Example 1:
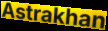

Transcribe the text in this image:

Astrakhan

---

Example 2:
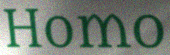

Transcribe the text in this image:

Homo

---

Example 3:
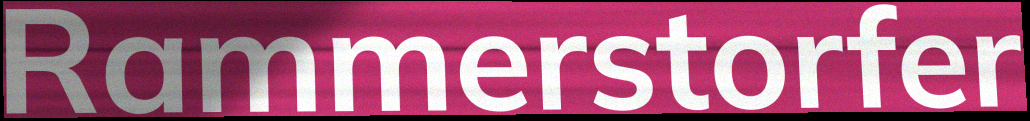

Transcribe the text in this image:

Rammerstorfer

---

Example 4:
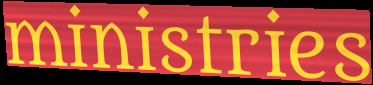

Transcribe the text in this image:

ministries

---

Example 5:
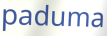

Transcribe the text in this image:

paduma